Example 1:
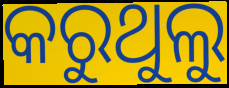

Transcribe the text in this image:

କରୁଥୁଲୁ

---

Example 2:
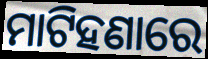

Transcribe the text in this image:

ମାଟିହଣାରେ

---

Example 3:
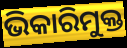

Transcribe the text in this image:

ଭିକାରିମୁକ୍ତ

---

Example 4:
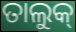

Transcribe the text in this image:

ତାଲୁକ୍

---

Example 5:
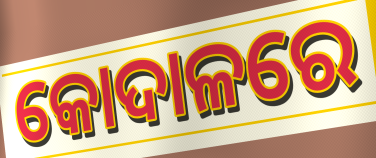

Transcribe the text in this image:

କୋଦାଳରେ